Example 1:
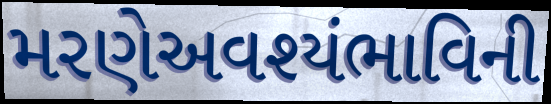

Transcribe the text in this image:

મરણેઅવશ્યંભાવિની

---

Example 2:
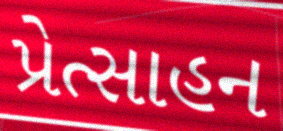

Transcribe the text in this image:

પ્રેત્સાહન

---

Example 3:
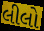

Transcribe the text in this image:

લીલો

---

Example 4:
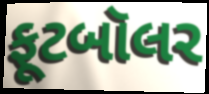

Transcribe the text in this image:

ફૂટબૉલર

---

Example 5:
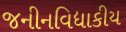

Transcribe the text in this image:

જનીનવિદ્યાકીય